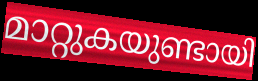
മാറ്റുകയുണ്ടായി